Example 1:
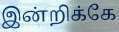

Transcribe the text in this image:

இன்றிக்கே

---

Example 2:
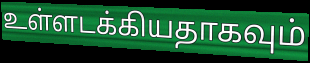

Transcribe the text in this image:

உள்ளடக்கியதாகவும்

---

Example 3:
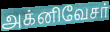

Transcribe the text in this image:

அக்னிவேசர்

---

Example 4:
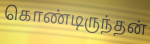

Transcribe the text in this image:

கொண்டிருந்தன்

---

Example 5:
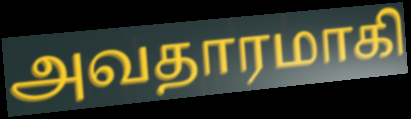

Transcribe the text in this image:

அவதாரமாகி